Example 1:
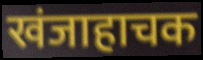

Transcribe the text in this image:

खंजाहाचक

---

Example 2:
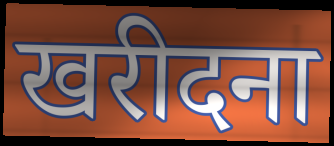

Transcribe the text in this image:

खरीदना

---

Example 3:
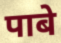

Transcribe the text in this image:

पाबे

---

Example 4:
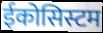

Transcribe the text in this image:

ईकोसिस्‍टम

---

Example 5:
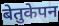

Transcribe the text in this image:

बेतुकेपन